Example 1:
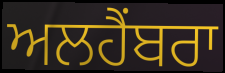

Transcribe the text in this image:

ਅਲਹੈਂਬਰਾ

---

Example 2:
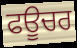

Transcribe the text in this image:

ਫਊਚਰ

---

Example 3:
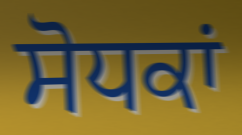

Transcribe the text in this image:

ਸੋਧਕਾਂ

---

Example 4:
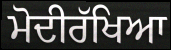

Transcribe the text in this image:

ਮੋਦੀਰੱਖਿਆ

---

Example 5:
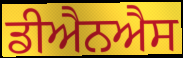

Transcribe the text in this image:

ਡੀਐਨਐਸ